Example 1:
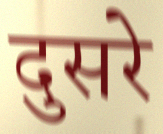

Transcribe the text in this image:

दुसरे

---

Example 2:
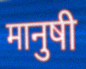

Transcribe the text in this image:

मानुषी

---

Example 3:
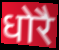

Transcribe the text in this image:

धोरै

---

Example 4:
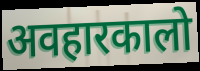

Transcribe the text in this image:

अवहारकालो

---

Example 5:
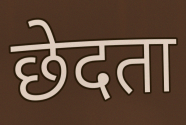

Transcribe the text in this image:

छेदता